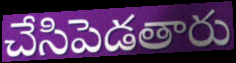
చేసిపెడతారు